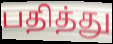
பதித்து